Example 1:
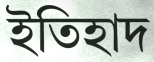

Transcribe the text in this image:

ইতিহাদ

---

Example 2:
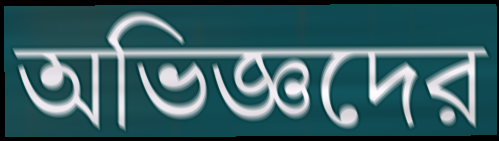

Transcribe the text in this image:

অভিজ্ঞদের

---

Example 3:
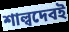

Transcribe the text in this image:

শাল্বদেবই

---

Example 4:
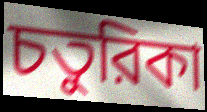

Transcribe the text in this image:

চতুরিকা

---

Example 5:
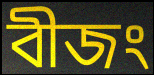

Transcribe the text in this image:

বীজং